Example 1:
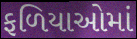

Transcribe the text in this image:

ફળિયાઓમાં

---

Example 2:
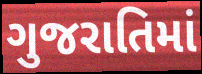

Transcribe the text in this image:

ગુજરાતિમાં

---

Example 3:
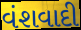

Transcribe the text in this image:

વંશવાદી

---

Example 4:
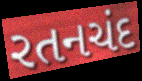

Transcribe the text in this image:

રતનચંદ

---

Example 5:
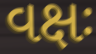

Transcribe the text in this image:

વક્ષઃ